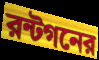
রন্টগনের